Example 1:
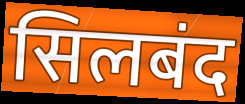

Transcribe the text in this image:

सिलबंद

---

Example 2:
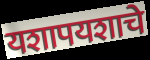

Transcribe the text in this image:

यशापयशाचे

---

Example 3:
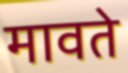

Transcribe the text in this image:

मावते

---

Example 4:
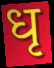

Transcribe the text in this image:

धृ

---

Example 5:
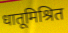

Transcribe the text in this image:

धातूमिश्रित